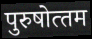
पुरुषोत्‍तम